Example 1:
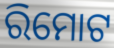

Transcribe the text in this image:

ରିମୋଟ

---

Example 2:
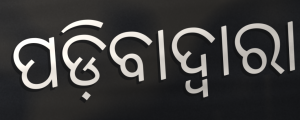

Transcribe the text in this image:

ପଡ଼ିବାଦ୍ୱାରା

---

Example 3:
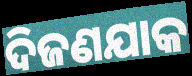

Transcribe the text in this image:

ଦିଜଣଯାକ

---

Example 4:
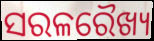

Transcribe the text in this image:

ସରଳରୈଖ୍ୟ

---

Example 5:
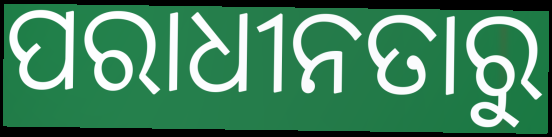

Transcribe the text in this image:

ପରାଧୀନତାରୁ